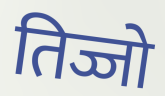
तिज्जो